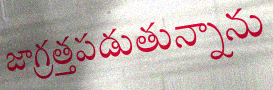
జాగ్రత్తపడుతున్నాను